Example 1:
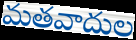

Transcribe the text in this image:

మతవాదుల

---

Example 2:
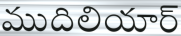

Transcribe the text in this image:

ముదిలియార్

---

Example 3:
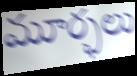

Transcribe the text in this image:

మూర్ఛలు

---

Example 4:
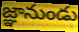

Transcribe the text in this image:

జ్ఞానుండు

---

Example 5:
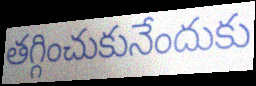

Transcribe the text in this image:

తగ్గించుకునేందుకు